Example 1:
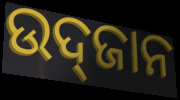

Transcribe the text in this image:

ଉଦ୍‌ଜାନ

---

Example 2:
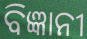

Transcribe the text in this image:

ବିଜ୍ଞାନୀ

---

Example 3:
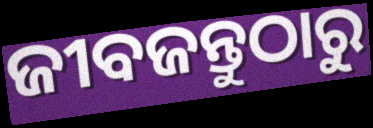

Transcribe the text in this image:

ଜୀବଜନ୍ତୁଠାରୁ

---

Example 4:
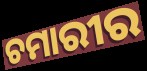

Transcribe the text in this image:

ଚମାରୀର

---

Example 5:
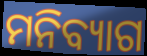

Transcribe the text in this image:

ମନିବ୍ୟାଗ